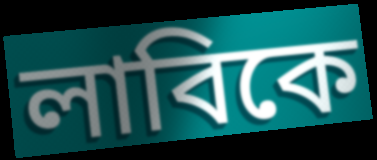
লাবিকে